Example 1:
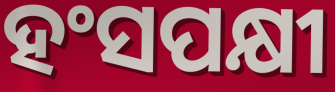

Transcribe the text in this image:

ହଂସପକ୍ଷୀ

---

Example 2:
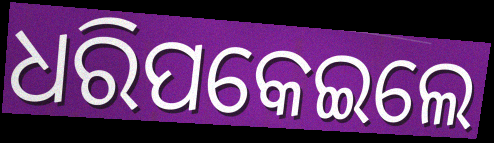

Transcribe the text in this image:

ଧରିପକେଇଲେ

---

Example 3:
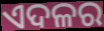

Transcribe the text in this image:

ଏଦଳର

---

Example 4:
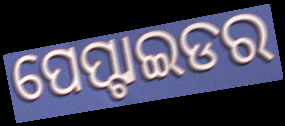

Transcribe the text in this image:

ପେପ୍ଟାଇଡର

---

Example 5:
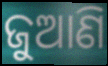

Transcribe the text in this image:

ଜୁଆଣି